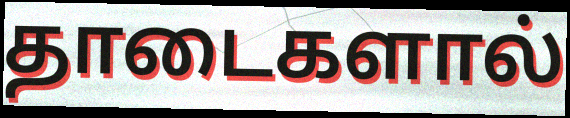
தாடைகளால்